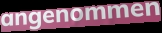
angenommen